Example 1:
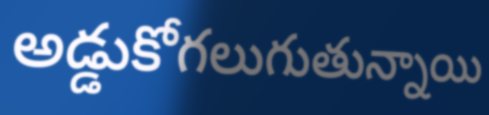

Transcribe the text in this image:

అడ్డుకోగలుగుతున్నాయి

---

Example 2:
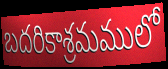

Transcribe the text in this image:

బదరికాశ్రమములో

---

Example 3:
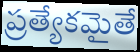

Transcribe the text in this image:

ప్రత్యేకమైతే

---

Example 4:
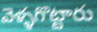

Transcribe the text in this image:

వెళ్ళగొట్టారు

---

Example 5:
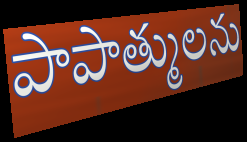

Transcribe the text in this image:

పాపాత్ములను